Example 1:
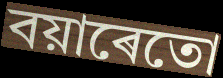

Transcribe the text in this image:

বয়াৰেতো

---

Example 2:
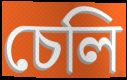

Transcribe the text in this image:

চেলি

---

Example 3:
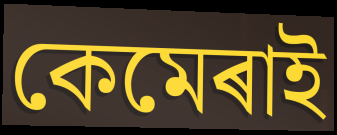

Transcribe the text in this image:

কেমেৰাই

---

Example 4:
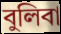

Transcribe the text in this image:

বুলিবা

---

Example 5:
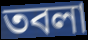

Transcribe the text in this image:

তবলা